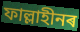
ফাল্লাহীনৰ